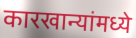
कारखान्यांमध्ये